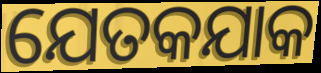
ଯେତକଯାକ